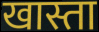
खास्ता